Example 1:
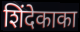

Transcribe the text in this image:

शिंदेकाका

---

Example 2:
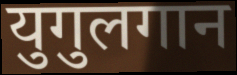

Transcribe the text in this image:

युगुलगान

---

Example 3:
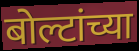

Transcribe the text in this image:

बोल्टांच्या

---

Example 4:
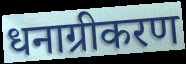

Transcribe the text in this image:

धनाग्रीकरण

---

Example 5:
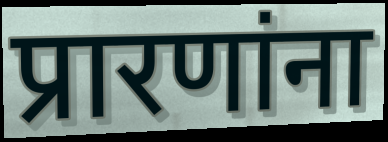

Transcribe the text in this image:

प्रारणांना